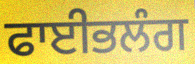
ਫਾਈਭਲੰਗ